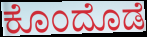
ಕೊಂದೊಡೆ